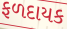
ફળદાયક